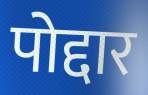
पोद्दार